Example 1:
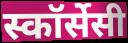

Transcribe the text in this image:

स्कॉर्सेसी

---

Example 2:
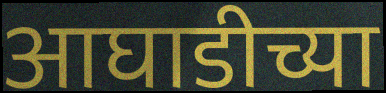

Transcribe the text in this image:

आघाडीच्या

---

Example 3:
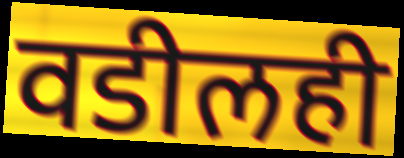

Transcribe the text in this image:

वडीलही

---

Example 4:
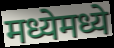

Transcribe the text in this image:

मध्येमध्ये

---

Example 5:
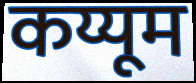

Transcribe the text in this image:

कय्यूम